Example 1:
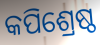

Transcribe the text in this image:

କପିଶ୍ରେଷ୍ଠ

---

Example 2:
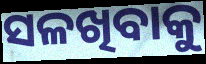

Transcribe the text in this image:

ସଳଖିବାକୁ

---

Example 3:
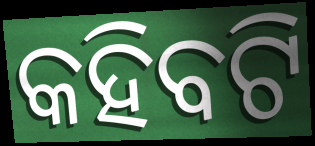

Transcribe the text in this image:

କହିବଟି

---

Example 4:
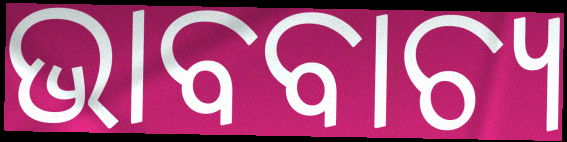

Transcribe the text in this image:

ଭାବବାଚ୍ୟ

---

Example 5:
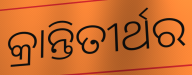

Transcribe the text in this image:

କ୍ରାନ୍ତିତୀର୍ଥର